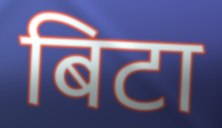
बिटा